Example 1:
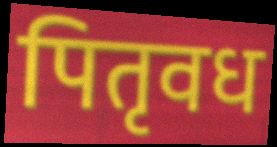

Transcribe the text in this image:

पितृवध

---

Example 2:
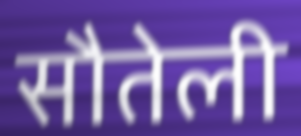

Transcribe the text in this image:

सौतेली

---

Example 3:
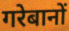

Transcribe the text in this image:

गरेबानों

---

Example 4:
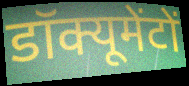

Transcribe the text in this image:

डॉक्यूमेंटों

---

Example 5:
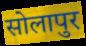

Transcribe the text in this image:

सोलापुर